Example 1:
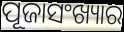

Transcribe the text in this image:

ପୂଜାସଂଖ୍ୟାର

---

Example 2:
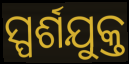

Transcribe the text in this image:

ସ୍ପର୍ଶଯୁକ୍ତ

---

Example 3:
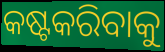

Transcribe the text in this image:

କଷ୍ଟକରିବାକୁ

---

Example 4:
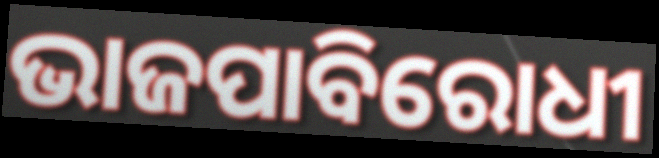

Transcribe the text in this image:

ଭାଜପାବିରୋଧୀ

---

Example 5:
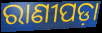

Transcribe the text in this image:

ରାଣୀପଡ଼ା